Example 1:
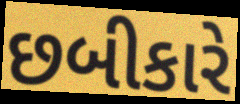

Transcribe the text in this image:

છબીકારે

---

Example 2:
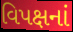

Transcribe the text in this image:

વિપક્ષનાં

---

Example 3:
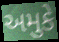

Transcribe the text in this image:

અમુકે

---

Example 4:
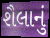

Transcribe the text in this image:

શૈલાનું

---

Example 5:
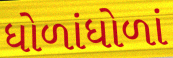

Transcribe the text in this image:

ધોળાંધોળાં